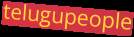
telugupeople